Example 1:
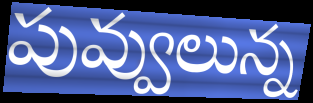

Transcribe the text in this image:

పువ్వులున్న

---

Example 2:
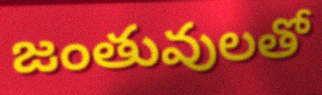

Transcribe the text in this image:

జంతువులతో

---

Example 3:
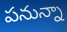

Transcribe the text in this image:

పనున్నా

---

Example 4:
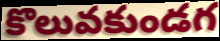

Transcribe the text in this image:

కొలువకుండగ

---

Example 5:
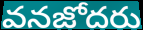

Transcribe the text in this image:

వనజోదరు